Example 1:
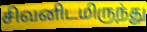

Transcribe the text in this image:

சிவனிடமிருந்து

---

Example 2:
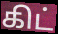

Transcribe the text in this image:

கிட்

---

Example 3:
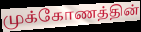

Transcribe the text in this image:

முக்கோணத்தின்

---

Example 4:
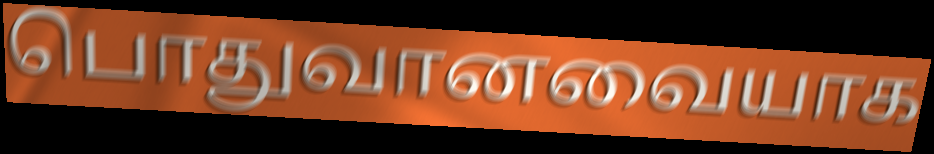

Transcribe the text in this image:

பொதுவானவையாக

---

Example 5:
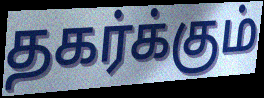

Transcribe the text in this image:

தகர்க்கும்